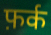
फ़र्क